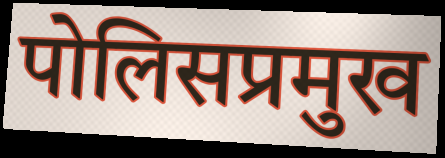
पोलिसप्रमुख